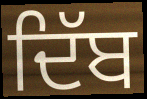
ਦਿੱਬ